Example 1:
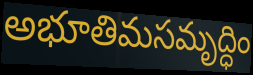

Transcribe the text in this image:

అభూతిమసమృద్ధిం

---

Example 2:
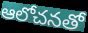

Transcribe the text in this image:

ఆలోచనతో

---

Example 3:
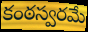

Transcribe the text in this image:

కంఠస్వరమే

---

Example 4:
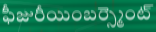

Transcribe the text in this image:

ఫీజురీయింబర్స్మెంట్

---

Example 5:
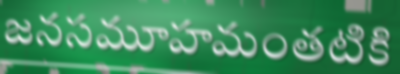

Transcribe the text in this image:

జనసమూహమంతటికి